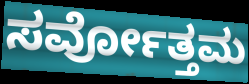
ಸರ್ವೋತ್ತಮ